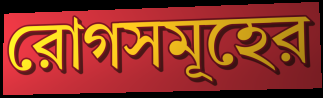
রোগসমূহের